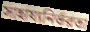
সাহায্যনির্ভরতা